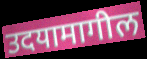
उदयामागील